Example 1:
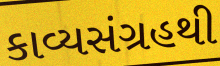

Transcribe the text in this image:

કાવ્યસંગ્રહથી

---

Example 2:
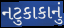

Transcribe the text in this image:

નટુકાકાનું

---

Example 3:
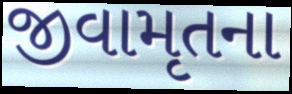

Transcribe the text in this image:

જીવામૃતના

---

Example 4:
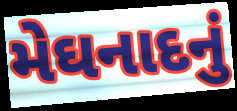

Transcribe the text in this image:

મેઘનાદનું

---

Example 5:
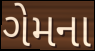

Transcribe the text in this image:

ગેમના